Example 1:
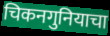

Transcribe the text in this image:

चिकनगुनियाचा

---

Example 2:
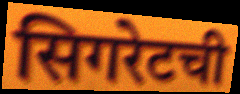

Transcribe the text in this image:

सिगरेटची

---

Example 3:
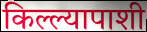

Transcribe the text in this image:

किल्ल्यापाशी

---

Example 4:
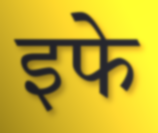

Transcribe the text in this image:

इफे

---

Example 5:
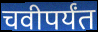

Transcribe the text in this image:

चवीपर्यंत